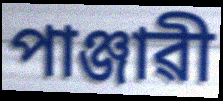
পাঞ্জাৱী